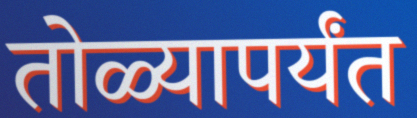
तोळ्यापर्यंत